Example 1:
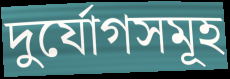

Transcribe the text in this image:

দুর্যোগসমূহ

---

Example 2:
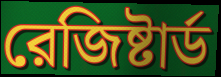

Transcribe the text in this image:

রেজিষ্টার্ড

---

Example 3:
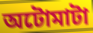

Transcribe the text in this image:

অটোমাটা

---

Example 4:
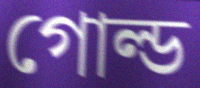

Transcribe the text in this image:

গোল্ড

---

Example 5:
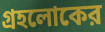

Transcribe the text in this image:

গ্রহলোকের